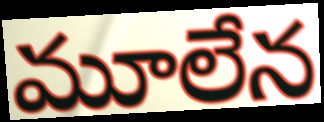
మూలేన